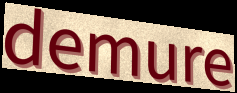
demure